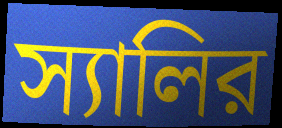
স্যালির